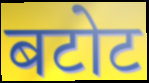
बटोट